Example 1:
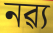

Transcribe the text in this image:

নৱ্য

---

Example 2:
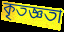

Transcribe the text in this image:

কৃতজ্ঞতা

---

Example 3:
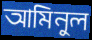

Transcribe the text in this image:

আমিনুল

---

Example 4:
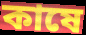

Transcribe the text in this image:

কাষে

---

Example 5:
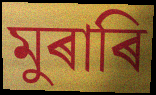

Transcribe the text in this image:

মুৰাৰি